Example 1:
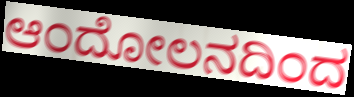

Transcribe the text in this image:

ಆಂದೋಲನದಿಂದ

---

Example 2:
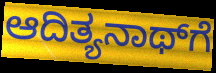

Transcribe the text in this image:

ಆದಿತ್ಯನಾಥ್‌ಗೆ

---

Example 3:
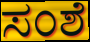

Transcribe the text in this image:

ಸಂಶೆ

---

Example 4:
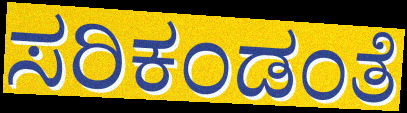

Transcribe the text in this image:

ಸರಿಕಂಡಂತೆ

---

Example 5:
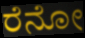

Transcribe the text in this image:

ರೆನೋ